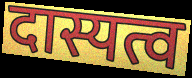
दास्यत्व